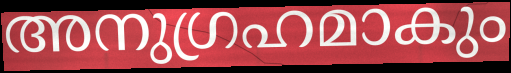
അനുഗ്രഹമാകും